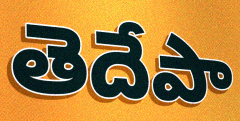
తెదేపా